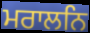
ਮਰਾਲਨਿ